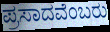
ಪ್ರಸಾದವೆಂಬರು